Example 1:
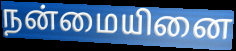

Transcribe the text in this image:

நன்மையினை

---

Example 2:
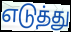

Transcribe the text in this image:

எடுத்து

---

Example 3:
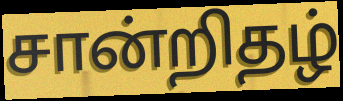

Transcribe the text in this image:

சான்றிதழ்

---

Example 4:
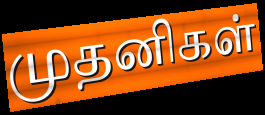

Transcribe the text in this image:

முதனிகள்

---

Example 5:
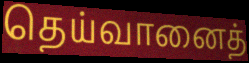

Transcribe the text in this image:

தெய்வானைத்